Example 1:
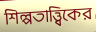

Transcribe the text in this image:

শিল্পতাত্ত্বিকের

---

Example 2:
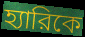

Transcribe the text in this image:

হ্যারিকে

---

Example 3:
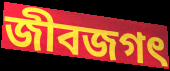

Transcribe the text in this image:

জীবজগৎ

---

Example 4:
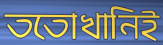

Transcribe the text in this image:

ততোখানিই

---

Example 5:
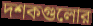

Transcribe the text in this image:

দশকগুলোর